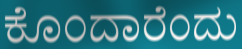
ಕೊಂದಾರೆಂದು